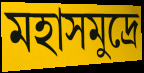
মহাসমুদ্রে